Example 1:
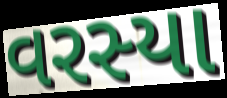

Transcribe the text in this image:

વરસ્યા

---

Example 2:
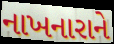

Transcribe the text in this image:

નાખનારાને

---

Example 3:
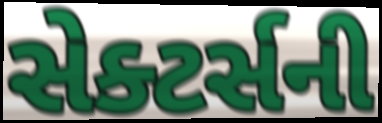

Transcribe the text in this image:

સેક્ટર્સની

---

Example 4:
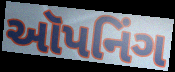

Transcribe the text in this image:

ઑપનિંગ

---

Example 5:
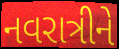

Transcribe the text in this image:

નવરાત્રીને